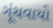
ગૂંચવાયો